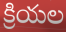
క్రియల